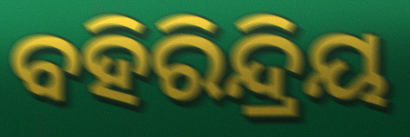
ବହିରିନ୍ଦ୍ରିୟ